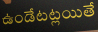
ఉండేటట్లయితే